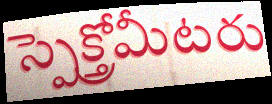
స్పెక్త్రోమీటరు